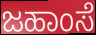
ಜಹಾಂಸೆ